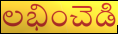
లభించెడి